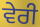
ਵੇਰੀ